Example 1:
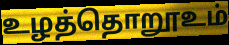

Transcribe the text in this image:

உழத்தொறூஉம்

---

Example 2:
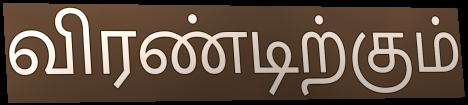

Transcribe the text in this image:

விரண்டிற்கும்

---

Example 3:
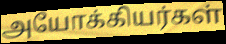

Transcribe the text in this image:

அயோக்கியர்கள்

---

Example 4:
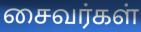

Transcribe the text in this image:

சைவர்கள்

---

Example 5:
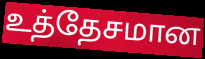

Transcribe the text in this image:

உத்தேசமான